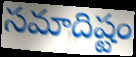
సమాదిష్టం